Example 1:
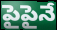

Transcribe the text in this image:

పైపైనే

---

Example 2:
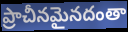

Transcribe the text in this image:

ప్రాచీనమైనదంతా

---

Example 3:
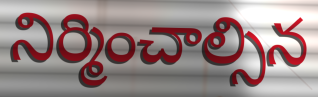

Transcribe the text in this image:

నిర్మించాల్సిన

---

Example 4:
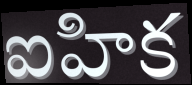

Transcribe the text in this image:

ఐహిక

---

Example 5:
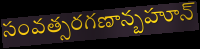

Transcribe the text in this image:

సంవత్సరగణాన్బహూన్